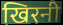
खिरनी